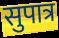
सुपात्र